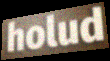
holud